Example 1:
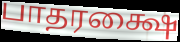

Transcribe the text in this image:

பாதரக்ஷை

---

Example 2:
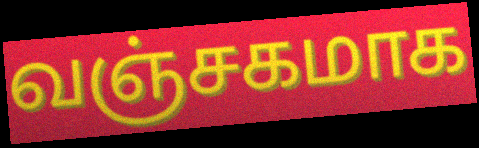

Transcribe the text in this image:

வஞ்சகமாக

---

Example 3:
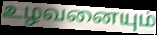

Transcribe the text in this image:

உழவனையும்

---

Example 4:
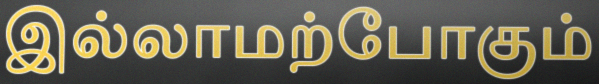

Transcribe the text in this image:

இல்லாமற்போகும்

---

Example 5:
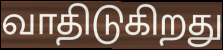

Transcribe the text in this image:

வாதிடுகிறது